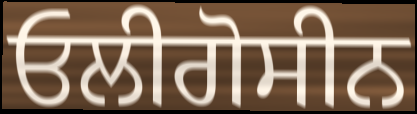
ਓਲੀਗੋਸੀਨ